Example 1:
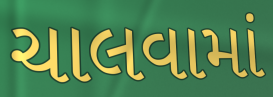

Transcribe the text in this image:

ચાલવામાં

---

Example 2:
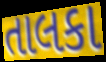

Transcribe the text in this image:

તાલકા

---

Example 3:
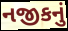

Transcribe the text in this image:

નજીકનું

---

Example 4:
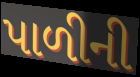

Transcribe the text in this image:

પાળીની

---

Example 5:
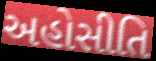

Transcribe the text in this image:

અહોસીતિ